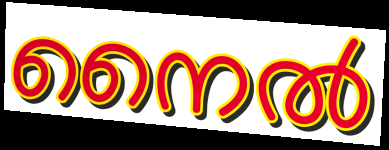
നൈൽ